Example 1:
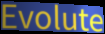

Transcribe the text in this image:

Evolute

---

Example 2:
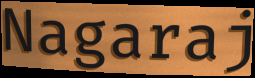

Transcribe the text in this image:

Nagaraj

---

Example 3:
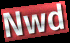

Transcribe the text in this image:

Nwd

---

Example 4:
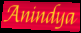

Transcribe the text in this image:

Anindya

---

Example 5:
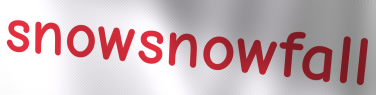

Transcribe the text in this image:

snowsnowfall